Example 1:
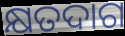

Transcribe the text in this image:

କ୍ଷତଦାଗ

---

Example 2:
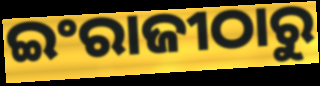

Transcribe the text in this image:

ଇଂରାଜୀଠାରୁ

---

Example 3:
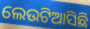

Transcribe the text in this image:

ଲେଉଟିଆସିଛି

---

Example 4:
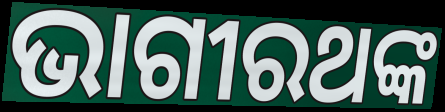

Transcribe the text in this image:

ଭାଗୀରଥଙ୍କ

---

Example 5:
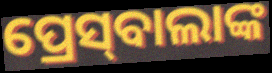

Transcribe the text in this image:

ପ୍ରେସ୍‌ବାଲାଙ୍କ